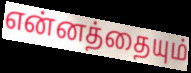
என்னத்தையும்